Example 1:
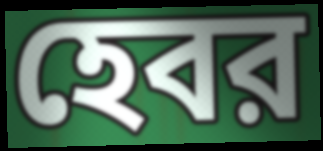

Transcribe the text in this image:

হেবর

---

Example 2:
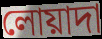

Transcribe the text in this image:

লোয়াদা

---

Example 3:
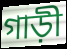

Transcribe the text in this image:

গাড়ী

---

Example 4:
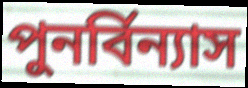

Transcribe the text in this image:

পুনর্বিন্যাস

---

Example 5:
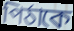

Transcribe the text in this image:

পিঠাকে